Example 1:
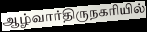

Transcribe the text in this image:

ஆழ்வார்திருநகரியில்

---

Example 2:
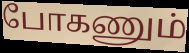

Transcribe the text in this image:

போகணும்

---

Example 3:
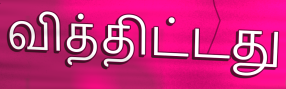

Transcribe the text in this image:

வித்திட்டது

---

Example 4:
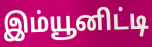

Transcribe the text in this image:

இம்யூனிட்டி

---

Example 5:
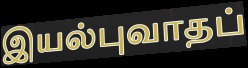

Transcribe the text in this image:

இயல்புவாதப்